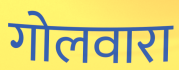
गोलवारा